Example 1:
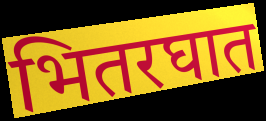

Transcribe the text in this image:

भितरघात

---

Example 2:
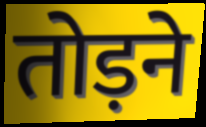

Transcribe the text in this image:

तोड़ने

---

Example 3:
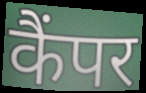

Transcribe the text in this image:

कैंपर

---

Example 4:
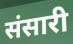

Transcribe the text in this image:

संसारी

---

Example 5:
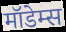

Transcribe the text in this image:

मॉडेम्स